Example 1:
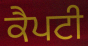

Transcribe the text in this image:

ਕੈਪਟੀ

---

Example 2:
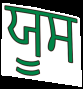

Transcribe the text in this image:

ਯੂਸ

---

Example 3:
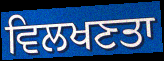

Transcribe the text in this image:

ਵਿਲਖਣਤਾ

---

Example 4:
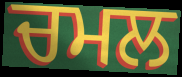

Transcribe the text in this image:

ਚਮਲ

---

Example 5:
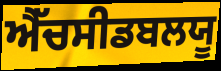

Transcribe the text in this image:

ਐੱਚਸੀਡਬਲਯੂ